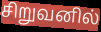
சிறுவனில்